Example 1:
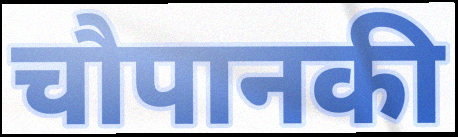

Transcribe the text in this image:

चौपानकी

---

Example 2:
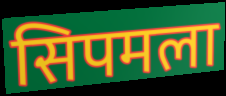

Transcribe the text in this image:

सिपमला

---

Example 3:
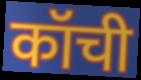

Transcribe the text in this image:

कॉची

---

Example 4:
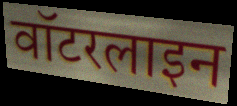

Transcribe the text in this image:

वॉटरलाइन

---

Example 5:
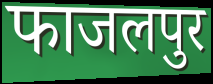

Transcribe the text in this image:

फाजलपुर